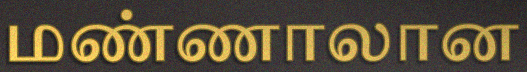
மண்ணாலான